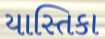
યાસ્તિકા